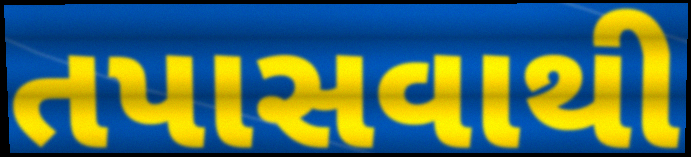
તપાસવાથી